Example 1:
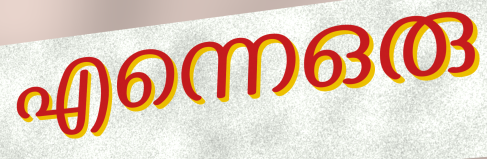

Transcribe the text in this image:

എന്നെഒരു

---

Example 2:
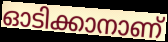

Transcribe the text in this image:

ഓടിക്കാനാണ്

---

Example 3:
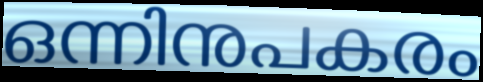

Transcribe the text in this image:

ഒന്നിനുപകരം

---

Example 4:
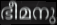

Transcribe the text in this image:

ഭീമനു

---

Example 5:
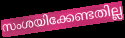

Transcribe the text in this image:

സംശയിക്കേണ്ടതില്ല